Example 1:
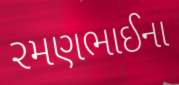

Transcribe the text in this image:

રમણભાઈના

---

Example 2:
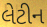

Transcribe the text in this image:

લેટીન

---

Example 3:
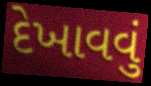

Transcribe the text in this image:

દેખાવવું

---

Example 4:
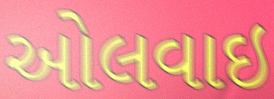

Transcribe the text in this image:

ઓલવાઇ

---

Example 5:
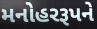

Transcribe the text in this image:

મનોહરરૂપને